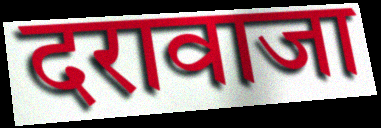
दरावाजा